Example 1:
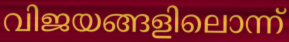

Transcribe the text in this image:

വിജയങ്ങളിലൊന്ന്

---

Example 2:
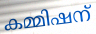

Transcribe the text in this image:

കമ്മിഷന്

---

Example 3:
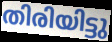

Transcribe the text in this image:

തിരിയിട്ടു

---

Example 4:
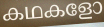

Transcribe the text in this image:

കഥകളോ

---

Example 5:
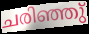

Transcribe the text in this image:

ചരിഞ്ഞു്